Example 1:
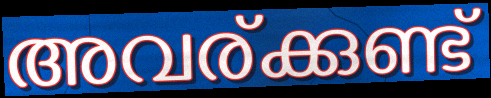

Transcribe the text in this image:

അവര്ക്കുണ്ട്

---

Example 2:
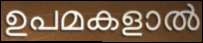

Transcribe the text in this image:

ഉപമകളാൽ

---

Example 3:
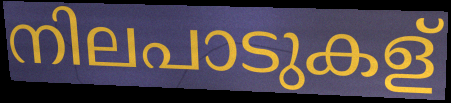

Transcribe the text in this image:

നിലപാടുകള്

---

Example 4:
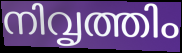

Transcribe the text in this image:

നിവൃത്തിം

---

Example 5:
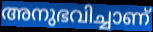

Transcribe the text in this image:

അനുഭവിച്ചാണ്